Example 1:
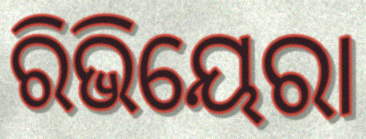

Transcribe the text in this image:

ରିଭିୟେରା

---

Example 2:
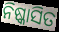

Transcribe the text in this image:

ନିଷ୍କାସିତ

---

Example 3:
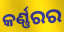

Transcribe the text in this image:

କର୍ଣ୍ଣରର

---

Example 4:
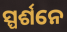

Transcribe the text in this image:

ସ୍ପର୍ଶନେ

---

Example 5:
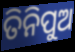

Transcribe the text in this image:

ତିନିପୁଅ